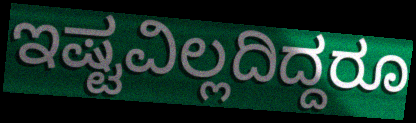
ಇಷ್ಟವಿಲ್ಲದಿದ್ದರೂ